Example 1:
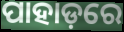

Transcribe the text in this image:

ପାହାଡ଼ରେ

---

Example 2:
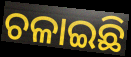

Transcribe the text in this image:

ଚଳାଇଛି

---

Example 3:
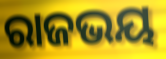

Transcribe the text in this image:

ରାଜଭୟ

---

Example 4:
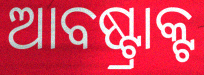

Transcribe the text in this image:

ଆବଷ୍ଟ୍ରାକ୍ଟ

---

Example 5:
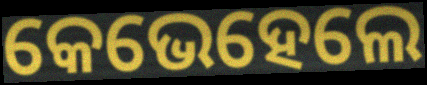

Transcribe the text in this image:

କେଭେହେଲେ